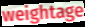
weightage